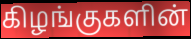
கிழங்குகளின்